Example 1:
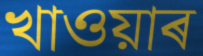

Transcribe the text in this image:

খাওয়াৰ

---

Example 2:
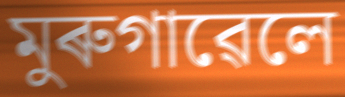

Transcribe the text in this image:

মুৰুগাৱেলে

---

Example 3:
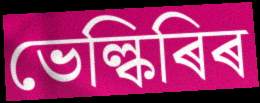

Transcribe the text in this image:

ভেল্কিৰিৰ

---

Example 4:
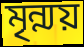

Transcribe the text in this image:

মৃন্ময়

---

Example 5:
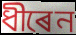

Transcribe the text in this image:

ধীৰেন